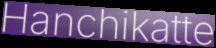
Hanchikatte